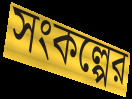
সংকল্পের